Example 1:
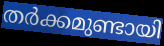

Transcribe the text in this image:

തർക്കമുണ്ടായി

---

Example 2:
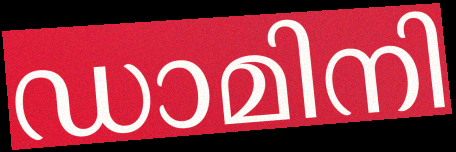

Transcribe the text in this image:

ഡാമിനി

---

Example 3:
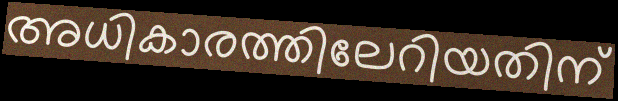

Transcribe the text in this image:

അധികാരത്തിലേറിയതിന്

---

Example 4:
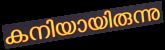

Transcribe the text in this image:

കനിയായിരുന്നു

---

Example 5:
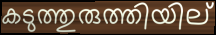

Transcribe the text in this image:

കടുത്തുരുത്തിയില്